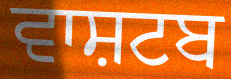
ਵਾਸ਼ਟਬ